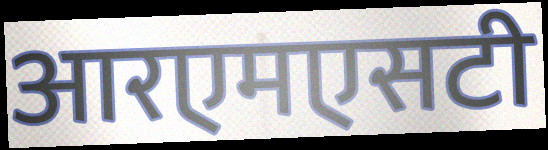
आरएमएसटी